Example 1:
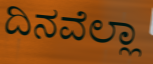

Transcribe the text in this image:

ದಿನವೆಲ್ಲಾ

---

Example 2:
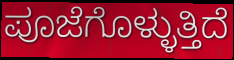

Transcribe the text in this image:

ಪೂಜೆಗೊಳ್ಳುತ್ತಿದೆ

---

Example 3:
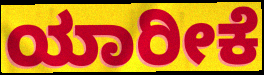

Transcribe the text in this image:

ಯಾರೀಕೆ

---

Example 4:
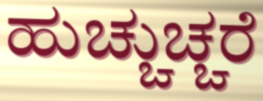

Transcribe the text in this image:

ಹುಚ್ಚುಚ್ಚರೆ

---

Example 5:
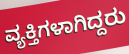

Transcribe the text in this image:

ವ್ಯಕ್ತಿಗಳಾಗಿದ್ದರು